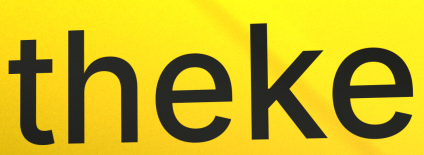
theke